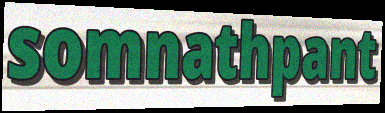
somnathpant